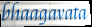
bhaagavata